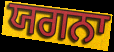
ਯਗਨਾ